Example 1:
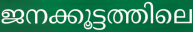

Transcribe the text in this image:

ജനക്കൂട്ടത്തിലെ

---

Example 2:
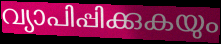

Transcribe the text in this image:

വ്യാപിപ്പിക്കുകയും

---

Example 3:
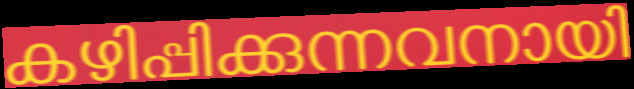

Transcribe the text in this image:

കഴിപ്പിക്കുന്നവനായി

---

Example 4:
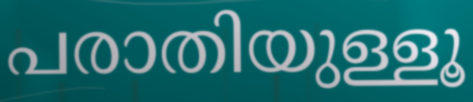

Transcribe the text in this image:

പരാതിയുള്ളൂ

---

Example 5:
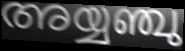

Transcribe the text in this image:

അയ്യഞ്ചു